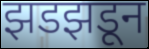
झडझडून